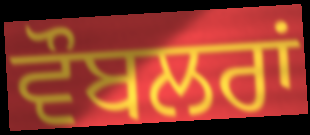
ਵੌਬਲਰਾਂ